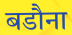
बडौना